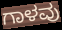
ಗಾಳವು